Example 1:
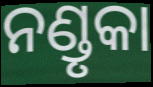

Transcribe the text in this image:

ନଣ୍ଡୃକା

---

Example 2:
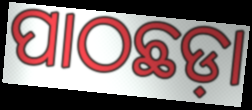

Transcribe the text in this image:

ପାଠଛଡ଼ା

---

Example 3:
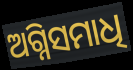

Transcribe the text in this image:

ଅଗ୍ନିସମାଧି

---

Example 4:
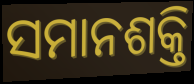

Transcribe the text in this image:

ସମାନଶକ୍ତି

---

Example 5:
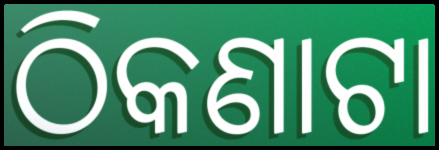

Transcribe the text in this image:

ଠିକଣାଟା